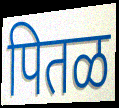
पितळ